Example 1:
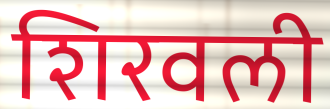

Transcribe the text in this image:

शिरवली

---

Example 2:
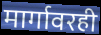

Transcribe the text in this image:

मार्गावरही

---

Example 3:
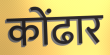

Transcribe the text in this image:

कोंढार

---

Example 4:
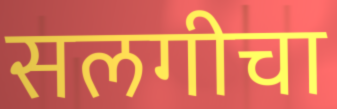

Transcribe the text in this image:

सलगीचा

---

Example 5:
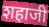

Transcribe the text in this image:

शहाजी